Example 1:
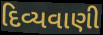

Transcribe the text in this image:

દિવ્યવાણી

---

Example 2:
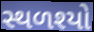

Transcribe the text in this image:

સ્થળશ્યો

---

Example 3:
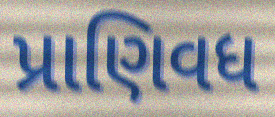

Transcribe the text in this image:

પ્રાણિવધ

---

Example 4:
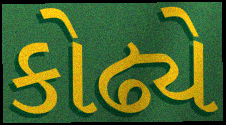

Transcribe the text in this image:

કોઢ્યે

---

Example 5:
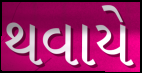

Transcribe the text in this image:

થવાયે